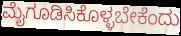
ಮೈಗೂಡಿಸಿಕೊಳ್ಳಬೇಕೆಂದು